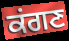
ਕਂਗਣ